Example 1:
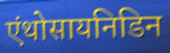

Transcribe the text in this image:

एंथोसायनिडिन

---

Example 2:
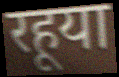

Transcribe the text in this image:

रहूया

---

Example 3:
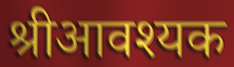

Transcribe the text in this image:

श्रीआवश्यक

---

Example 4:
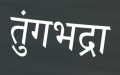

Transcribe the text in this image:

तुंगभद्रा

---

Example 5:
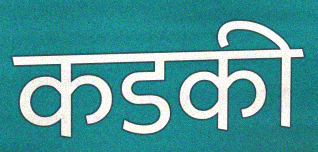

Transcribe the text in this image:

कडकी